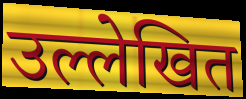
उल्‍लेखित